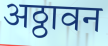
अठ्ठावन